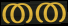
തത